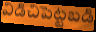
విడిచిపెట్టబడి